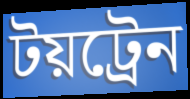
টয়ট্রেন